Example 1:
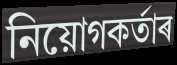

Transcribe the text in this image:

নিয়োগকৰ্তাৰ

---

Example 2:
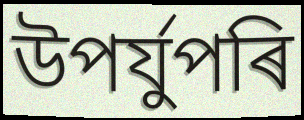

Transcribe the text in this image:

উপৰ্যুপৰি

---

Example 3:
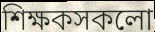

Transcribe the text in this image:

শিক্ষকসকলো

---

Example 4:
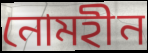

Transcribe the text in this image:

নোমহীন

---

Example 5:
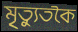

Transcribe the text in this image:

মৃত্যুতকৈ